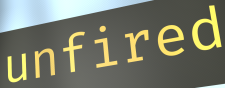
unfired